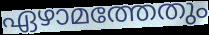
ഏഴാമത്തേതും